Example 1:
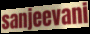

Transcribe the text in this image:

sanjeevani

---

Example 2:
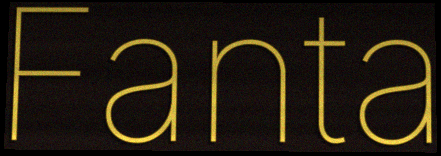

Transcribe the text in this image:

Fanta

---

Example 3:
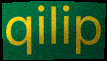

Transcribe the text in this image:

qilip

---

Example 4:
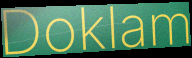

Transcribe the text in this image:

Doklam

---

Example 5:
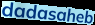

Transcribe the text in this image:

dadasaheb